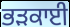
ਭੜਕਾਈ